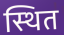
स्थित